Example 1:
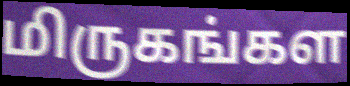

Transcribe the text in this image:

மிருகங்கள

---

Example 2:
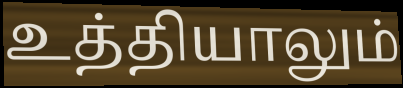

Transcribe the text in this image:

உத்தியாலும்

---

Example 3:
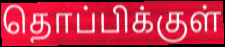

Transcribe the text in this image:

தொப்பிக்குள்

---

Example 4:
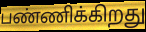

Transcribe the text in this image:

பண்ணிக்கிறது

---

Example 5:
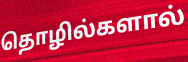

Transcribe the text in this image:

தொழில்களால்